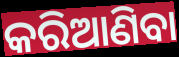
କରିଆଣିବା